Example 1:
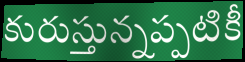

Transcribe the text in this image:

కురుస్తున్నప్పటికీ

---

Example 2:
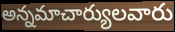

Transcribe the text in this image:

అన్నమాచార్యులవారు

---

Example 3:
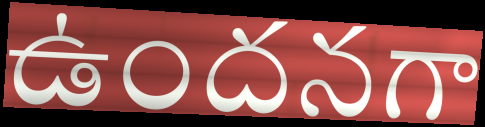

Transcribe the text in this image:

ఉందనగా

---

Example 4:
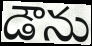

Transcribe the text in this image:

డౌను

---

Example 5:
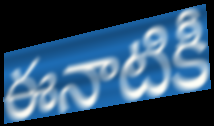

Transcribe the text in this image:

ఈనాటికీ